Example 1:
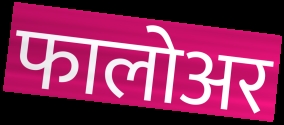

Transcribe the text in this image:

फालोअर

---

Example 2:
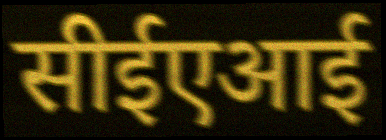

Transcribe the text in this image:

सीईएआई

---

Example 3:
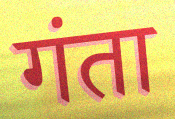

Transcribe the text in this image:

गंता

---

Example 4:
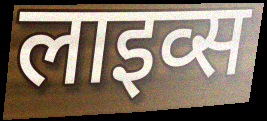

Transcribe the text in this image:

लाइव्स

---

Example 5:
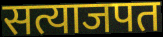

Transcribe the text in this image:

सत्याजपत